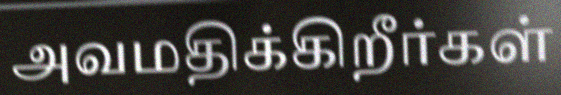
அவமதிக்கிறீர்கள்